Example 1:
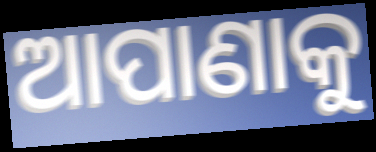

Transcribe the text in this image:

ଆପାଣାକୁ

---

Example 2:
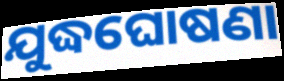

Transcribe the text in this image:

ଯୁଦ୍ଧଘୋଷଣା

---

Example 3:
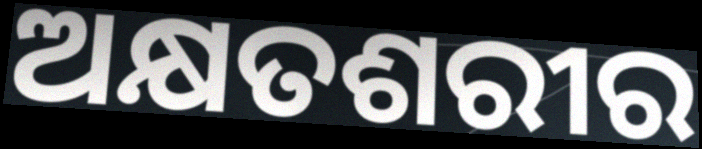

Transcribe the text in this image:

ଅକ୍ଷତଶରୀର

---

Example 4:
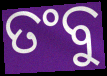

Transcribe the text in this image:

ତଂବୁ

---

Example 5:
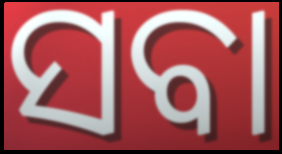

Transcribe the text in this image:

ସବା